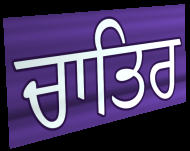
ਚਾਤਿਰ